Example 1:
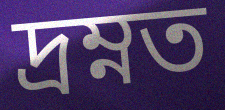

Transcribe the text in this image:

দ্রম্নত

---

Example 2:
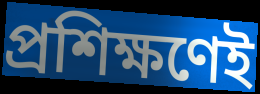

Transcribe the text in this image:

প্রশিক্ষণেই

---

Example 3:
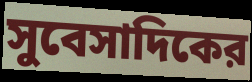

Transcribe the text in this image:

সুবেসাদিকের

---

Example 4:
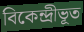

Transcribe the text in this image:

বিকেন্দ্রীভূত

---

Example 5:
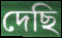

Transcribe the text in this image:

দেছি